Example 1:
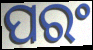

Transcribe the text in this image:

ପରଂ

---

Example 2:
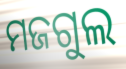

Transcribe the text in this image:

ମଜଗୁଲ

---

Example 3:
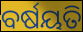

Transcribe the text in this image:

ବର୍ଷୟତି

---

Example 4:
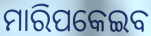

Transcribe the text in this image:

ମାରିପକେଇବ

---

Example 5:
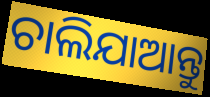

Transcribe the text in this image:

ଚାଲିଯାଆନ୍ତୁ